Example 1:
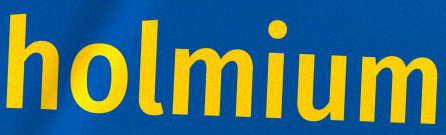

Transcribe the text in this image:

holmium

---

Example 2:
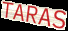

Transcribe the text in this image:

TARAS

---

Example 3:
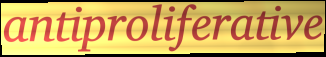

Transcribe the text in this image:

antiproliferative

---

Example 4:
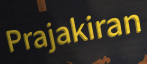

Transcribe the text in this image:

Prajakiran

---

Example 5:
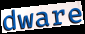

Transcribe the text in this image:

dware